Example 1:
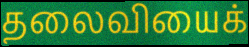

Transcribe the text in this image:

தலைவியைக்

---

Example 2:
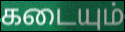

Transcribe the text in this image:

கடையும்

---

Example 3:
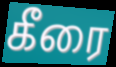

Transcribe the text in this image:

கீரை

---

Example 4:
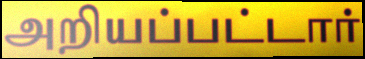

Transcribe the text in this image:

அறியப்பட்டார்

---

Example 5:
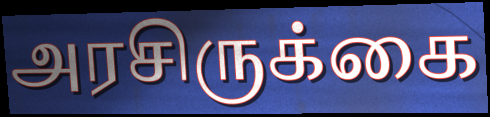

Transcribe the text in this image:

அரசிருக்கை